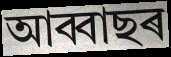
আব্বাছৰ